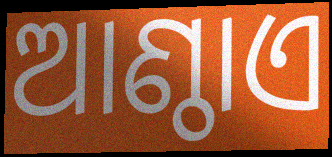
ଆଣ୍ଠାଏ